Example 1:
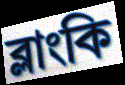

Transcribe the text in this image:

ব্লাংকি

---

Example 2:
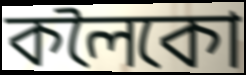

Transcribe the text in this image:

কলৈকো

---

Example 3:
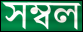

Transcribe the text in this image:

সম্বল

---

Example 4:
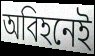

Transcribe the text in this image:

অবিহনেই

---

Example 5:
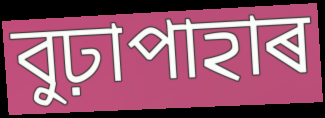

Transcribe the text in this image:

বুঢ়াপাহাৰ